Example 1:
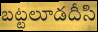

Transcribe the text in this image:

బట్టలూడదీసి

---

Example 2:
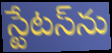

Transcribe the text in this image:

స్టేటస్‌ను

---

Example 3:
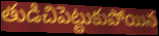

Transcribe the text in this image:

తుడిచిపెట్టుకుపోయిన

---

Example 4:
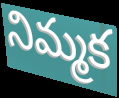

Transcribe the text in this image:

నిమ్మక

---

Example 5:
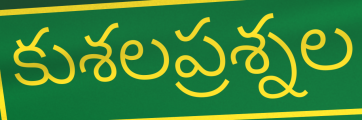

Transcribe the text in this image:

కుశలప్రశ్నల